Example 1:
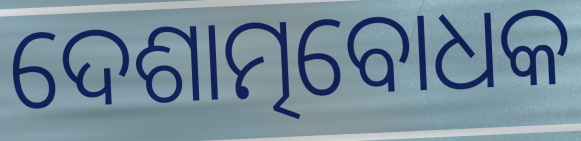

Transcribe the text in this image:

ଦେଶାତ୍ମବୋଧକ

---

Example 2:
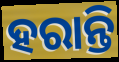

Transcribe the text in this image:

ହରାନ୍ତି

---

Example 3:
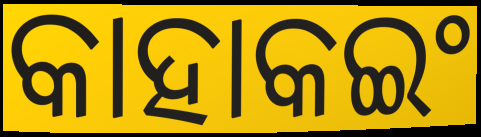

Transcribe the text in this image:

କାହାକଇଂ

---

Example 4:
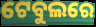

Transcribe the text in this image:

ଟେବୁଲରେ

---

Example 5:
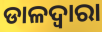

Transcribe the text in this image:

ଡାଳଦ୍ୱାରା